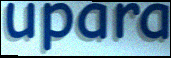
upara